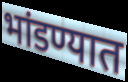
भांडण्यात